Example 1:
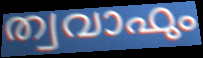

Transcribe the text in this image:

ത്വവാഫും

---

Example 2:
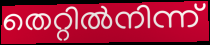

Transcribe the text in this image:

തെറ്റിൽനിന്ന്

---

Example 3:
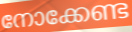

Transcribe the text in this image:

നോക്കേണ്ട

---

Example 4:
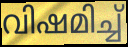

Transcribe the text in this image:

വിഷമിച്ച്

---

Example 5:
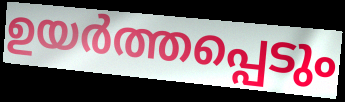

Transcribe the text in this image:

ഉയർത്തപ്പെടും